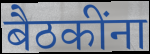
बैठकींना